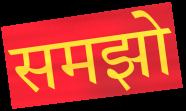
समझो